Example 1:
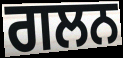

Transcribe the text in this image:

ਗਲਨ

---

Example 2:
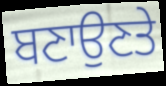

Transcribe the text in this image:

ਬਣਾਉਣਤੇ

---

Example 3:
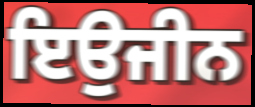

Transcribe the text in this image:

ਇਉਜੀਨ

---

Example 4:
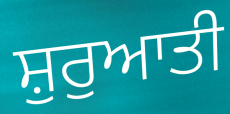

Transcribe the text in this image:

ਸ਼ੁਰੁਆਤੀ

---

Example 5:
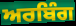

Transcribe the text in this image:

ਅਰਬਿੰਗ